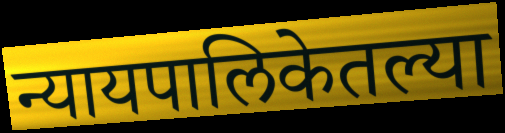
न्यायपालिकेतल्या